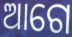
ଆଗେ